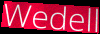
Wedell